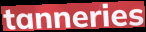
tanneries